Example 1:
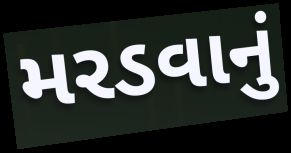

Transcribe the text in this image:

મરડવાનું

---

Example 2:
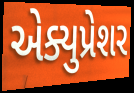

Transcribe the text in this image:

એક્યુપ્રેશર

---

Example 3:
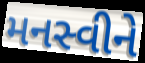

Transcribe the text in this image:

મનસ્વીને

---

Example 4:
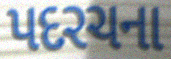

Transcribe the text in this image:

પદરચના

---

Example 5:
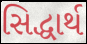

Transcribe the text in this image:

સિદ્ધાર્થ